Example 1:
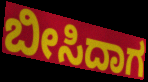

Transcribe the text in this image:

ಬೀಸಿದಾಗ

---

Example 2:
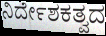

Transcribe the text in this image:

ನಿರ್ದೇಶಕತ್ವದ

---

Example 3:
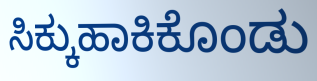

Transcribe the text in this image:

ಸಿಕ್ಕುಹಾಕಿಕೊಂಡು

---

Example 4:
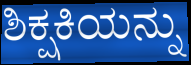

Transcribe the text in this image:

ಶಿಕ್ಷಕಿಯನ್ನು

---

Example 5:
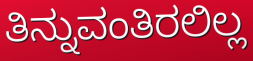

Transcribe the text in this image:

ತಿನ್ನುವಂತಿರಲಿಲ್ಲ